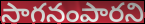
సాగనంపారని